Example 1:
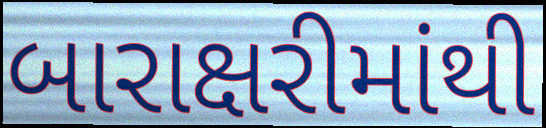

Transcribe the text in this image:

બારાક્ષરીમાંથી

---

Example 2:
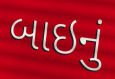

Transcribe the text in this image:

બાઇનું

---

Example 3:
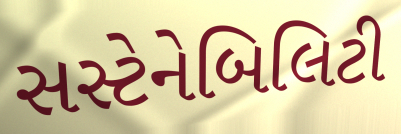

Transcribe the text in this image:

સસ્ટેનેબિલિટી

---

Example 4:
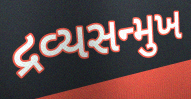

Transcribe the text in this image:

દ્રવ્યસન્મુખ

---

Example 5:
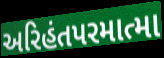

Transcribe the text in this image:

અરિહંતપરમાત્મા